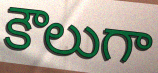
కౌలుగా